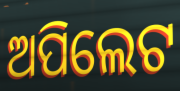
ଅପିଲେଟ